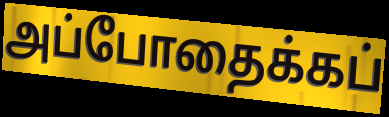
அப்போதைக்கப்